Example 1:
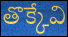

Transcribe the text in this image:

తొక్కేవి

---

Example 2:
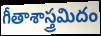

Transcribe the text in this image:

గీతాశాస్త్రమిదం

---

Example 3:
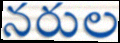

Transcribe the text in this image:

నరుల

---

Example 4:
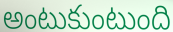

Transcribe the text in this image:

అంటుకుంటుంది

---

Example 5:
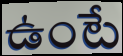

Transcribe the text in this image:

ఉంటే